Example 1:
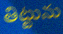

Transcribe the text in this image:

తిట్టును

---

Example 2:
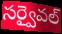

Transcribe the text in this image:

సర్వైవల్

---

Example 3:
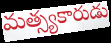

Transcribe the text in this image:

మత్స్యకారుడు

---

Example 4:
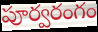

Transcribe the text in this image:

పూర్వరంగం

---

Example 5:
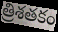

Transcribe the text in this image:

త్రిశతకం